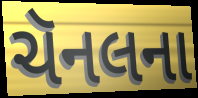
ચૅનલના